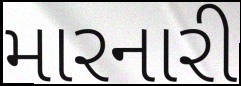
મારનારી